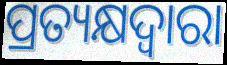
ପ୍ରତ୍ୟକ୍ଷଦ୍ବାରା